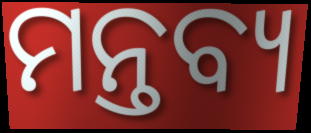
ମନ୍ତବ୍ୟ